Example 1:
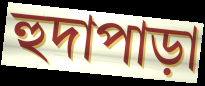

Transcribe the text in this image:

হুদাপাড়া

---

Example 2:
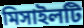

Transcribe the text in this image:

মিসাইলটি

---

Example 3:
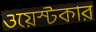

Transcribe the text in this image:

ওয়েস্টকার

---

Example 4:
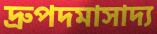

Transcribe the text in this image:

দ্রুপদমাসাদ্য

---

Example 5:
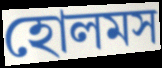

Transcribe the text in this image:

হোলমস